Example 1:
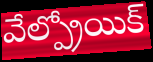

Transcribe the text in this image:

వేల్ప్రోయిక్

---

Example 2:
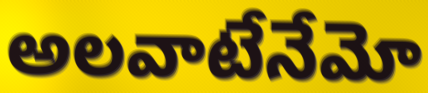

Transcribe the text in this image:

అలవాటేనేమో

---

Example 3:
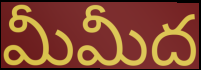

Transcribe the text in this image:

మీమీద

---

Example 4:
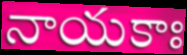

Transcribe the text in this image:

నాయకాః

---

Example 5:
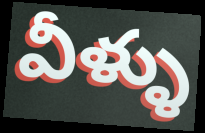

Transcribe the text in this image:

వీళ్ళు